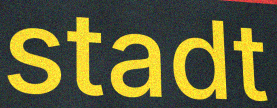
stadt